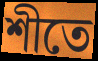
শীতে